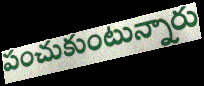
పంచుకుంటున్నారు